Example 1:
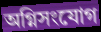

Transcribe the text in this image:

অগ্নিসংযোগ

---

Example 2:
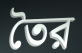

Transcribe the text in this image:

তৈর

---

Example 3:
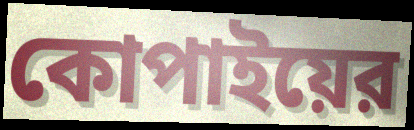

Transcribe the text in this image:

কোপাইয়ের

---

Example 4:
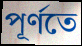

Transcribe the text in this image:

পূর্ণতে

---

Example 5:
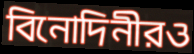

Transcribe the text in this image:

বিনোদিনীরও